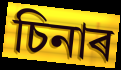
চিনাৰ